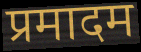
प्रमादम